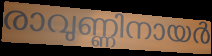
രാവുണ്ണിനായർ